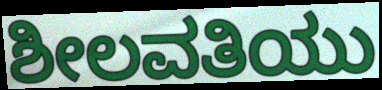
ಶೀಲವತಿಯು